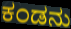
ಕಂಡನು